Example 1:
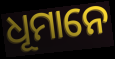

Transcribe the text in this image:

ଧୂମାନେ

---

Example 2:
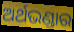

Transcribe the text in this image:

ଅର୍ଥଭଣ୍ଡାର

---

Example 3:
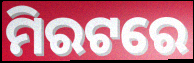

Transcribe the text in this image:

ମିରଟରେ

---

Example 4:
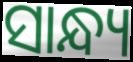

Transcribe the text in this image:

ସାନ୍ଧ୍ୟ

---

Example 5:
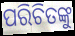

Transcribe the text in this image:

ପରିଚିତଙ୍କୁ